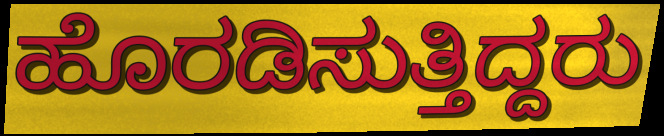
ಹೊರಡಿಸುತ್ತಿದ್ದರು